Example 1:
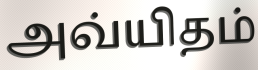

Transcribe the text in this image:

அவ்யிதம்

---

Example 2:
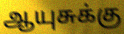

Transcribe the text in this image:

ஆயுசுக்கு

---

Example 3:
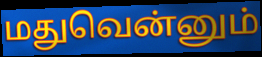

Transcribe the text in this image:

மதுவென்னும்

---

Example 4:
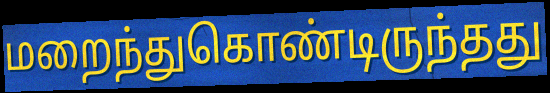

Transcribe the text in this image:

மறைந்துகொண்டிருந்தது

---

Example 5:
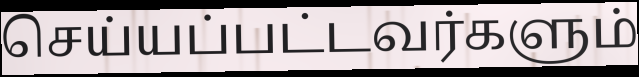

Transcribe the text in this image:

செய்யப்பட்டவர்களும்